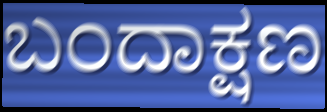
ಬಂದಾಕ್ಷಣ